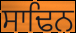
ਸਾਢਿਨ